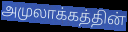
அமுலாக்கத்தின்